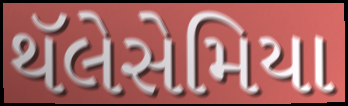
થૅલેસેમિયા